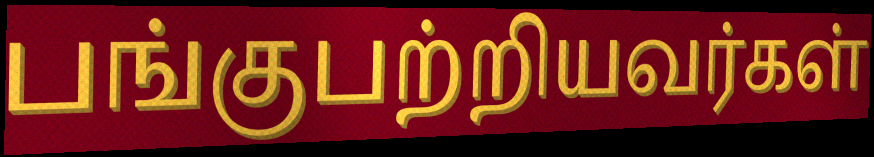
பங்குபற்றியவர்கள்